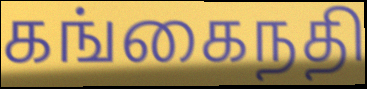
கங்கைநதி